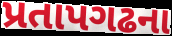
પ્રતાપગઢના